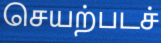
செயற்படச்